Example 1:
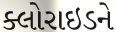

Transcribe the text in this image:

ક્લોરાઇડને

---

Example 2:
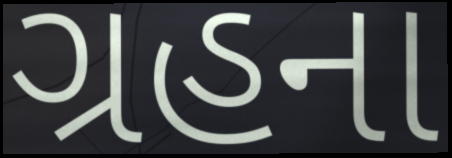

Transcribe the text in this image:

ગ્રહના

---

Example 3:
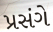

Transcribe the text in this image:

પ્રસંગે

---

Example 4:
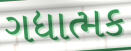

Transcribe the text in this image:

ગદ્યાત્મક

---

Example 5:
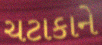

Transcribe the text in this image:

ચટાકાને